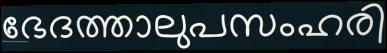
ഭേദത്താലുപസംഹരി